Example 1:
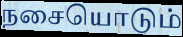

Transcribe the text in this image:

நசையொடும்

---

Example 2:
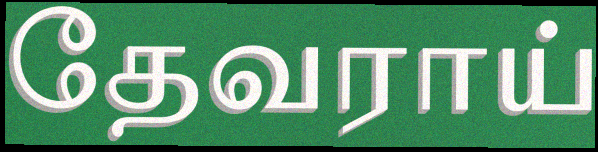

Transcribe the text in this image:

தேவராய்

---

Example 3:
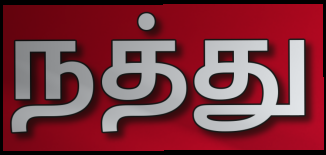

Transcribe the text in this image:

நத்து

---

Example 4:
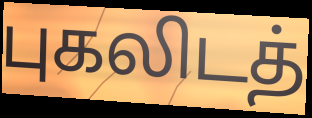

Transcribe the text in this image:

புகலிடத்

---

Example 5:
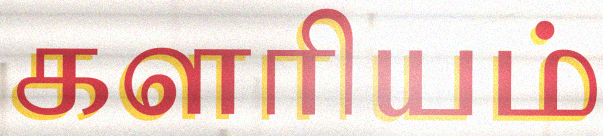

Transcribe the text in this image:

களரியம்